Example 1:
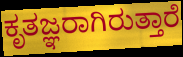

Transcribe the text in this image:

ಕೃತಜ್ಞರಾಗಿರುತ್ತಾರೆ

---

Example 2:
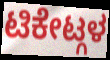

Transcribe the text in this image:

ಟಿಕೇಟ್ಗಳ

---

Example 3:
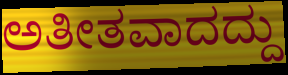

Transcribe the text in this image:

ಅತೀತವಾದದ್ದು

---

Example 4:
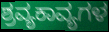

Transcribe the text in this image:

ಶ್ರವ್ಯಕಾವ್ಯಗಳ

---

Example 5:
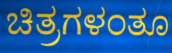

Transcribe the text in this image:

ಚಿತ್ರಗಳಂತೂ